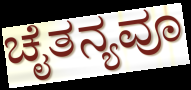
ಚೈತನ್ಯವೂ